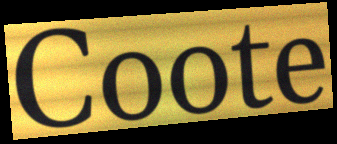
Coote